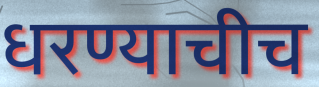
धरण्याचीच